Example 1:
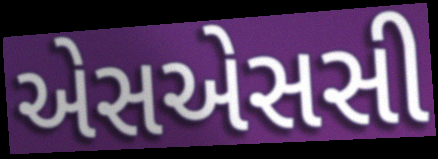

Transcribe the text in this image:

એસએસસી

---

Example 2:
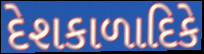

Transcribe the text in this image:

દેશકાળાદિકે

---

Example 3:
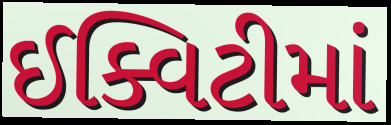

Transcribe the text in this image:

ઈક્વિટીમાં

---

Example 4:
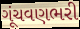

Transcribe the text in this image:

ગૂંચવણભરી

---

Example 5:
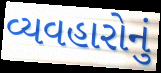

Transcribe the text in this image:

વ્યવહારોનું